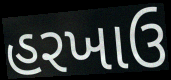
હરખાઉ